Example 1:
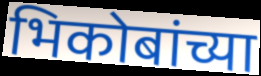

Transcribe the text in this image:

भिकोबांच्या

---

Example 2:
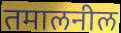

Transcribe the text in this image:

तमालनील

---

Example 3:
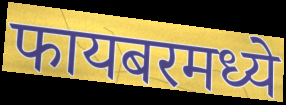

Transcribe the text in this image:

फायबरमध्ये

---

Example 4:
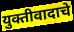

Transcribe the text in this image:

युक्तीवादाचे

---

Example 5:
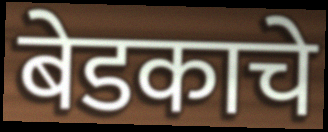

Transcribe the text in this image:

बेडकाचे